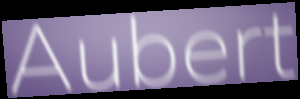
Aubert